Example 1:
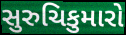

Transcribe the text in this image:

સુરુચિકુમારો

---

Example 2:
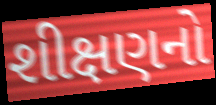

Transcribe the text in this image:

શીક્ષણનો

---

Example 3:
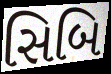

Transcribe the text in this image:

સિબિ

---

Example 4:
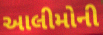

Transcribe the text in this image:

આલીમોની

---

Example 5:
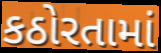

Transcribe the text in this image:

કઠોરતામાં